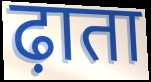
ढ़ाता